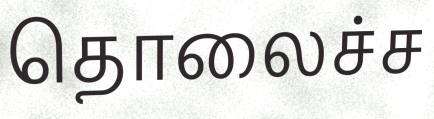
தொலைச்ச